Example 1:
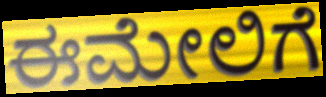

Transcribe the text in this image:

ಈಮೇಲಿಗೆ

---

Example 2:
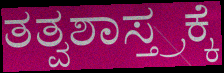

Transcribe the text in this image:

ತತ್ವಶಾಸ್ತ್ರಕ್ಕೆ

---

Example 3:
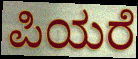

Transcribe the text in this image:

ಪಿಯರೆ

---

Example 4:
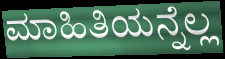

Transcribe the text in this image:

ಮಾಹಿತಿಯನ್ನೆಲ್ಲ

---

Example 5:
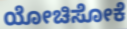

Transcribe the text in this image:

ಯೋಚಿಸೋಕೆ